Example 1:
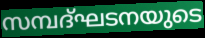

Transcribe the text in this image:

സമ്പദ്ഘടനയുടെ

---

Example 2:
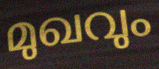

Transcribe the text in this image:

മുഖവും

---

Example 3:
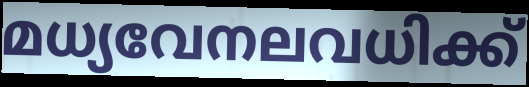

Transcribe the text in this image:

മധ്യവേനലവധിക്ക്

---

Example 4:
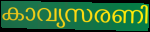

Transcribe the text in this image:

കാവ്യസരണി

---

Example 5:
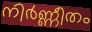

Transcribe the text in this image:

നിർണ്ണീതം